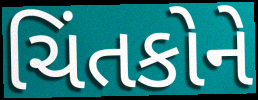
ચિંતકોને